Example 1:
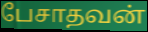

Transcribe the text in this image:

பேசாதவன்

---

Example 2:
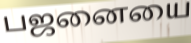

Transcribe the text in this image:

பஜனையை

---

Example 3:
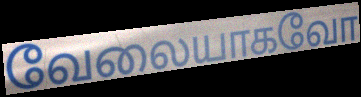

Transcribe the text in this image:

வேலையாகவோ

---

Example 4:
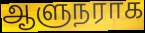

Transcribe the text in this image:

ஆளுநராக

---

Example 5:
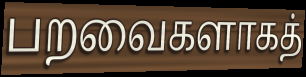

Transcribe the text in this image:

பறவைகளாகத்